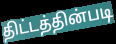
திட்டத்தின்படி